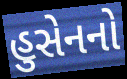
હુસેનનો